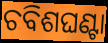
ଚବିଶଘଣ୍ଟା